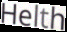
Helth